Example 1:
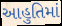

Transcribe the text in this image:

આહુતિમાં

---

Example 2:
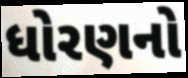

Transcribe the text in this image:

ધોરણનો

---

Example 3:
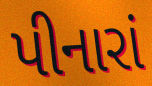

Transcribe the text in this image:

પીનારાં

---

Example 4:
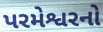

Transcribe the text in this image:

પરમેશ્વરનો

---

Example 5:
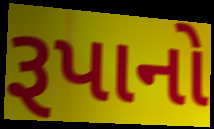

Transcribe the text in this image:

રૂપાનો